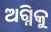
ଅଗ୍ନିକୁ